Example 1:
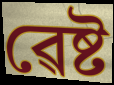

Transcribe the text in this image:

ৱেষ্ট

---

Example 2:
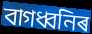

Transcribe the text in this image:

বাগধ্বনিৰ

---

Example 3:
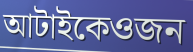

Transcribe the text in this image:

আটাইকেওজন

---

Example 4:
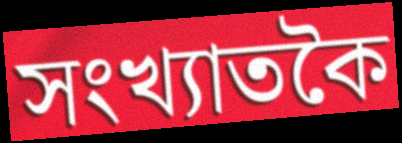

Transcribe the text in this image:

সংখ্যাতকৈ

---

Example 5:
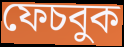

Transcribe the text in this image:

ফেচবুক